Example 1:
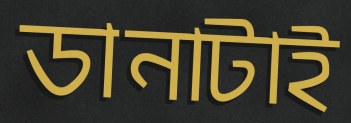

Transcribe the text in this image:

ডানাটাই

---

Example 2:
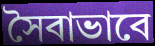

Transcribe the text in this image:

সৈবাভাবে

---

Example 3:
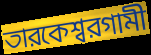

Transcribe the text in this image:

তারকেশ্বরগামী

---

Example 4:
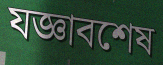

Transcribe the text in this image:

যজ্ঞাবশেষ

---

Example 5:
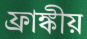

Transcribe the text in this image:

ফ্রাঙ্কীয়